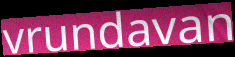
vrundavan